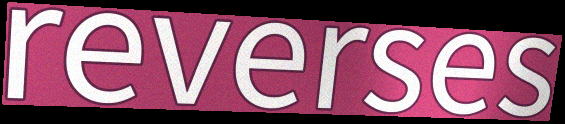
reverses